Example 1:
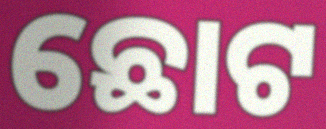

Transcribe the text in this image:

ଛୋଟ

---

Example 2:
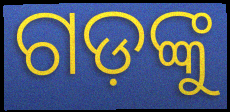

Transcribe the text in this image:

ଗଡ଼ଙ୍କୁ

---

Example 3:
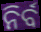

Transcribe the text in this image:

ନିର୍ବ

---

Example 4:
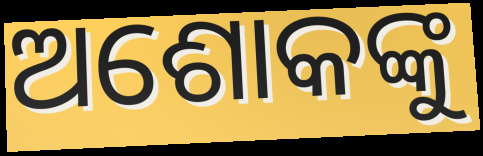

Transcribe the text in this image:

ଅଶୋକଙ୍କୁ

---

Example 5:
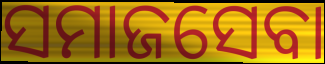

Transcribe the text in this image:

ସମାଜସେବା